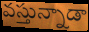
వస్తున్నాడా